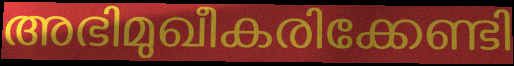
അഭിമുഖീകരിക്കേണ്ടി